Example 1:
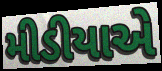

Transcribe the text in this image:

મીડીયાએ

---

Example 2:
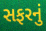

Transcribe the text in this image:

સફરનું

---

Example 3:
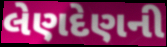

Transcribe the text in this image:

લેણદેણની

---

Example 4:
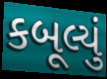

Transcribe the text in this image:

કબૂલ્યું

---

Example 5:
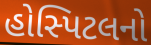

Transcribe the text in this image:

હોસ્પિટલનો